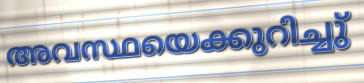
അവസ്ഥയെക്കുറിച്ചു്